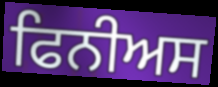
ਫਿਨੀਅਸ